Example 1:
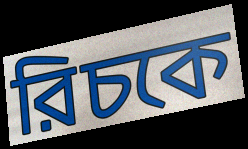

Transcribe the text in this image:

রিচকে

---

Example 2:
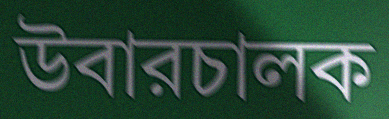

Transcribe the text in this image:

উবারচালক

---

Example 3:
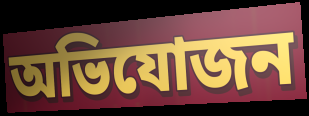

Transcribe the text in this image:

অভিযোজন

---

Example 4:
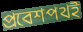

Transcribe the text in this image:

প্রবেশপথই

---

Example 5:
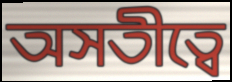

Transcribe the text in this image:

অসতীত্বে